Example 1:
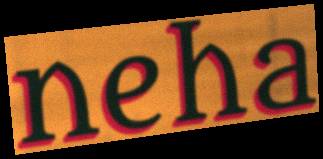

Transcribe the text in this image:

neha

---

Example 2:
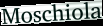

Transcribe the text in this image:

Moschiola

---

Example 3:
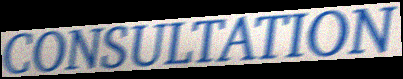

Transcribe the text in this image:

CONSULTATION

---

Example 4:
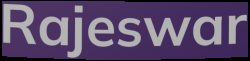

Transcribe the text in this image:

Rajeswar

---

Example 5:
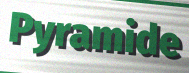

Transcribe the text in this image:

Pyramide